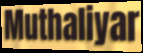
Muthaliyar